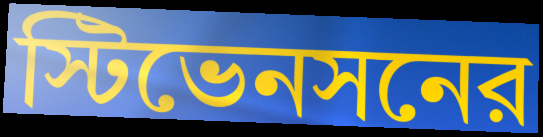
স্টিভেনসনের